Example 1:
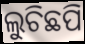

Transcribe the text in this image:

ଲୁଚିଛପି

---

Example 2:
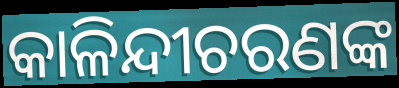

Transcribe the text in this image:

କାଳିନ୍ଦୀଚରଣଙ୍କ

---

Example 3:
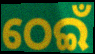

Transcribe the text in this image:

ଠେଇଁ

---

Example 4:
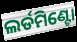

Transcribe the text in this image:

ଲର୍ଡମିଣ୍ଟୋ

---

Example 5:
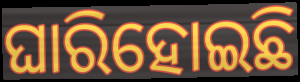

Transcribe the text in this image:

ଘାରିହୋଇଛି